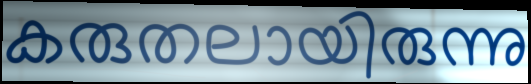
കരുതലായിരുന്നു